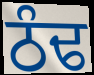
ਠੰਢ